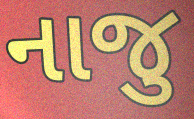
નાજુ